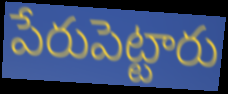
పేరుపెట్టారు